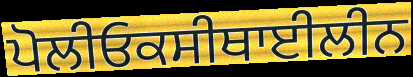
ਪੋਲੀਓਕਸੀਥਾਈਲੀਨ